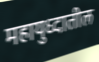
महायुध्दातील